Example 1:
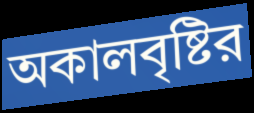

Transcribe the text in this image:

অকালবৃষ্টির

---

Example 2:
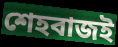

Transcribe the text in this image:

শেহবাজই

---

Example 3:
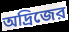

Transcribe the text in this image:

অদ্রিজের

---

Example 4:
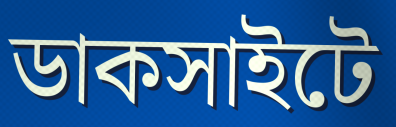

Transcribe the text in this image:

ডাকসাইটে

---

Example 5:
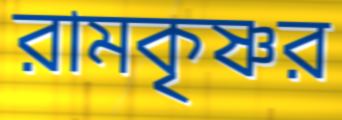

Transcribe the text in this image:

রামকৃষ্ণর